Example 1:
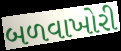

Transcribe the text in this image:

બળવાખોરી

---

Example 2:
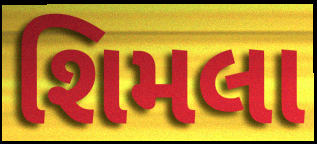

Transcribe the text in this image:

શિમલા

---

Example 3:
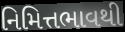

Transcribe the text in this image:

નિમિત્તભાવથી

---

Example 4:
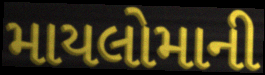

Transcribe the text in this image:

માયલોમાની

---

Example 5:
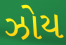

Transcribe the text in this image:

ઝોય